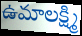
ఉమాలక్ష్మి